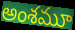
అంశమూ